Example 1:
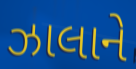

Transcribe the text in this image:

ઝાલાને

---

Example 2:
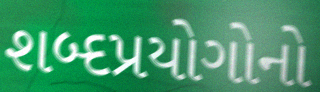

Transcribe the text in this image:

શબ્દપ્રયોગોનો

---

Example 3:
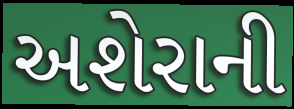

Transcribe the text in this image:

અશેરાની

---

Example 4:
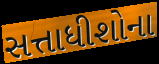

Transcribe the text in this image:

સત્તાધીશોના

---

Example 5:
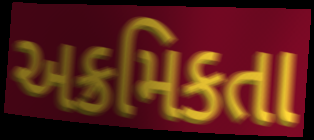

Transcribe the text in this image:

અક્રમિકતા